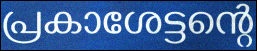
പ്രകാശേട്ടന്റെ